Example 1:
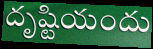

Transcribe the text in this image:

దృష్టియందు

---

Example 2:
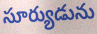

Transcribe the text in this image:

సూర్యుడును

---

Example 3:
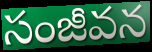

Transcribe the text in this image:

సంజీవన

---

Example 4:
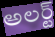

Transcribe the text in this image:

అలర్ట్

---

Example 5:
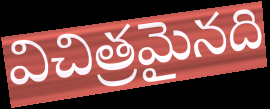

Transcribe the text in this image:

విచిత్రమైనది